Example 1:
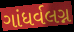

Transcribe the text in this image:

ગાંધર્વલગ્ન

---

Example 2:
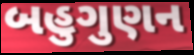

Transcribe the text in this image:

બહુગુણન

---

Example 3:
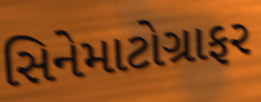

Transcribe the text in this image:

સિનેમાટોગ્રાફર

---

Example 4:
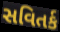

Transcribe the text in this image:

સવિતર્ક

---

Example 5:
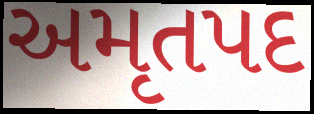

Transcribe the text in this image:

અમૃતપદ